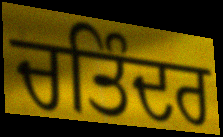
ਚਤਿੰਦਰ